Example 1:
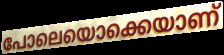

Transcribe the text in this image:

പോലെയൊക്കെയാണ്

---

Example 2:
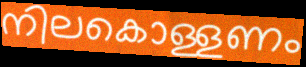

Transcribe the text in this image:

നിലകൊള്ളണം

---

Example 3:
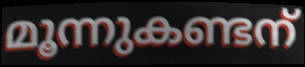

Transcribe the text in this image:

മൂന്നുകണ്ടന്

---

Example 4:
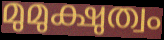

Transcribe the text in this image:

മുമുക്ഷുത്വം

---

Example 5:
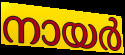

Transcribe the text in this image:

നായർ